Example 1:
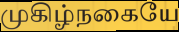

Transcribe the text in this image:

முகிழ்நகையே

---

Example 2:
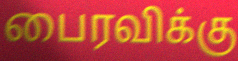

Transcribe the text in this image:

பைரவிக்கு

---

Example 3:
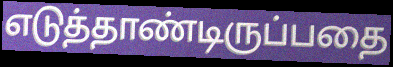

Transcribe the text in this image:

எடுத்தாண்டிருப்பதை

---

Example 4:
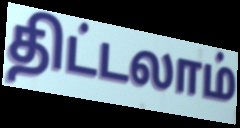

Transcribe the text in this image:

திட்டலாம்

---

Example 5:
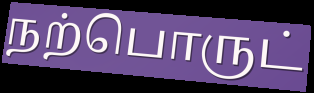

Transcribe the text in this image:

நற்பொருட்